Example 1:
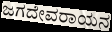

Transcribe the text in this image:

ಜಗದೇವರಾಯನ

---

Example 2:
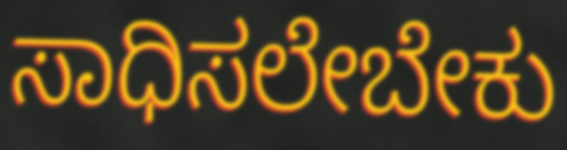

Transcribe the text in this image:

ಸಾಧಿಸಲೇಬೇಕು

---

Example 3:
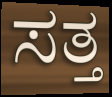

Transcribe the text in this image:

ಸತ್ತ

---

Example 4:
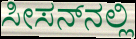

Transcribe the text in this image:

ಸೀಸನ್‌ನಲ್ಲಿ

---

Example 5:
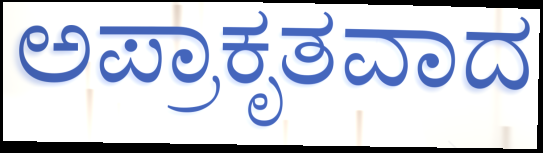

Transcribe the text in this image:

ಅಪ್ರಾಕೃತವಾದ